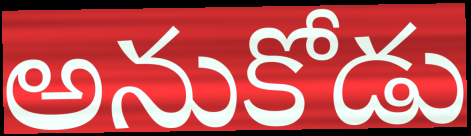
అనుకోడు